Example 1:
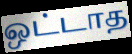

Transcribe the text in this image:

ஒட்டாத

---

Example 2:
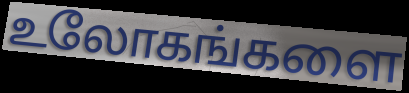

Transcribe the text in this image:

உலோகங்களை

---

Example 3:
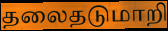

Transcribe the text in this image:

தலைதடுமாறி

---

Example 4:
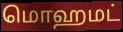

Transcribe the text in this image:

மொஹமட்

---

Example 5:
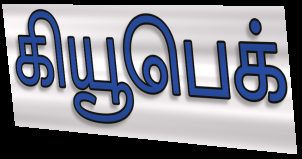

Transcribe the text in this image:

கியூபெக்